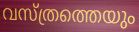
വസ്ത്രത്തെയും